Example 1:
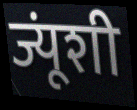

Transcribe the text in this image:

ज्यूंशी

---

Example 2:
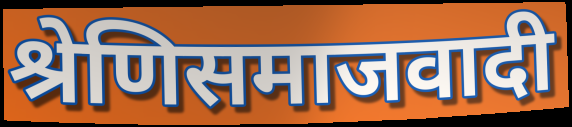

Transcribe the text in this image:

श्रेणिसमाजवादी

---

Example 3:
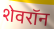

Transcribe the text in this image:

शेवरॉन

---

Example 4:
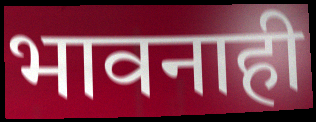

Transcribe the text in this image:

भावनाही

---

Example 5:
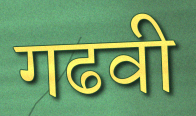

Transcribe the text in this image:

गढवी